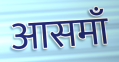
आसमाँ